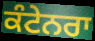
ਕੰਟੇਨਰਾ